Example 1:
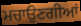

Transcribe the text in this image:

ਮਚਾਉਣਗੀਆਂ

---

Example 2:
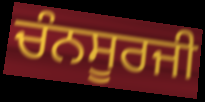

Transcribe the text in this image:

ਚੰਨਸੂਰਜੀ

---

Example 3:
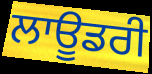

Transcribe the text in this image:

ਲਾਊਡਰੀ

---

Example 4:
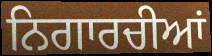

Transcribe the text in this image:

ਨਿਗਾਰਚੀਆਂ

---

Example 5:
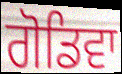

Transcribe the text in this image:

ਗੋਡਿਵਾ